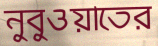
নুবুওয়াতের